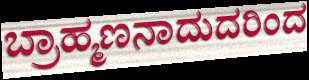
ಬ್ರಾಹ್ಮಣನಾದುದರಿಂದ